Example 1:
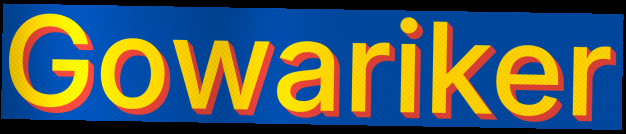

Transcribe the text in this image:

Gowariker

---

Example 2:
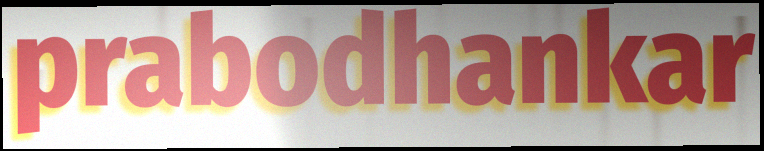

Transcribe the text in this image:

prabodhankar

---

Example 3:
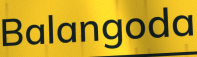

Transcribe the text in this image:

Balangoda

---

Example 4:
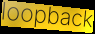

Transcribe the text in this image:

loopback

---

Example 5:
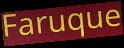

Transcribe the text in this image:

Faruque